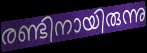
രണ്ടിനായിരുന്നു